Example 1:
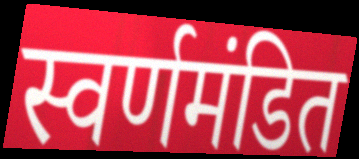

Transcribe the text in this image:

स्वर्णमंडित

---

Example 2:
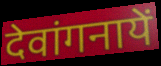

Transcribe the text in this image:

देवांगनायें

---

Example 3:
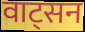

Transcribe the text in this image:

वाट्सन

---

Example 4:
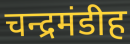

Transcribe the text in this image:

चन्द्रमंडीह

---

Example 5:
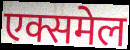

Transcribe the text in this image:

एक्समेल